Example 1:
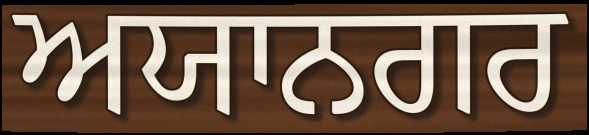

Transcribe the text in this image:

ਅਯਾਨਗਰ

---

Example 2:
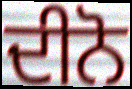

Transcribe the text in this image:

ਦੀਨੋ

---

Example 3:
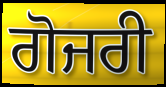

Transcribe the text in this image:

ਗੋਜਰੀ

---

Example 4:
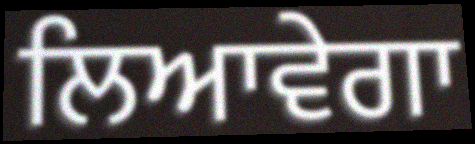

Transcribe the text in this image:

ਲਿਆਵੇਗਾ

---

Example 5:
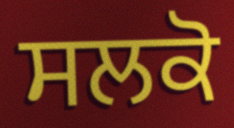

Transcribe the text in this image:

ਸਲਕੋ